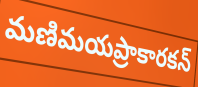
మణిమయప్రాకారకన్